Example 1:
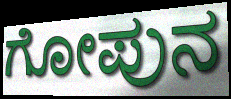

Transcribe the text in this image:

ಗೋಪುನ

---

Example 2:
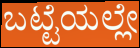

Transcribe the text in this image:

ಬಟ್ಟೆಯಲ್ಲೇ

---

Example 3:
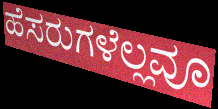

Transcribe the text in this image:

ಹೆಸರುಗಳೆಲ್ಲವೂ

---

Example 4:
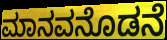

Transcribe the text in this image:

ಮಾನವನೊಡನೆ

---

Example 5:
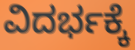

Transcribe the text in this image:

ವಿದರ್ಭಕ್ಕೆ